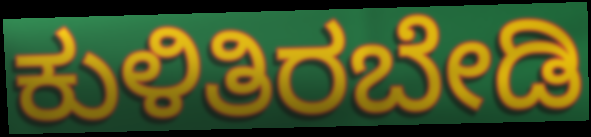
ಕುಳಿತಿರಬೇಡಿ